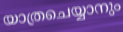
യാത്രചെയ്യാനും